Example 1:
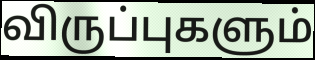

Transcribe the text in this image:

விருப்புகளும்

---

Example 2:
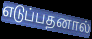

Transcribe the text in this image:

எடுப்பதனால்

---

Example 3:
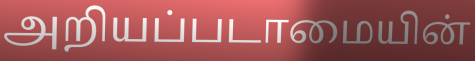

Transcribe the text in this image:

அறியப்படாமையின்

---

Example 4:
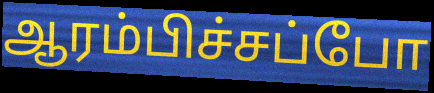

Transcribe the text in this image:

ஆரம்பிச்சப்போ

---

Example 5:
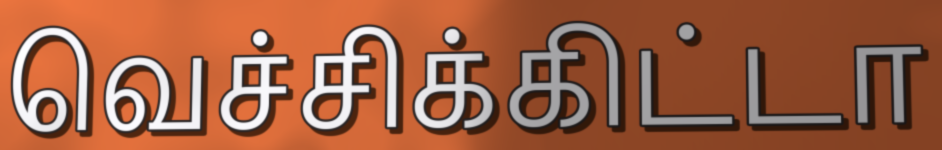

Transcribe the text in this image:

வெச்சிக்கிட்டா